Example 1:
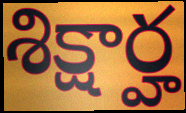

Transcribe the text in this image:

శిక్షార్హ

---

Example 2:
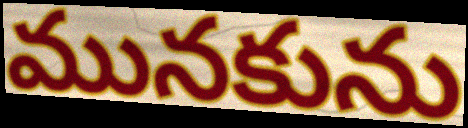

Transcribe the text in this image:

మునకును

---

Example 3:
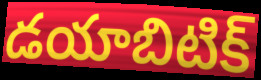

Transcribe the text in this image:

డయాబిటిక్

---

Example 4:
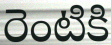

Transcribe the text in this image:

రెంటికి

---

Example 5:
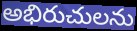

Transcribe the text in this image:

అభిరుచులను